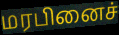
மரபினைச்